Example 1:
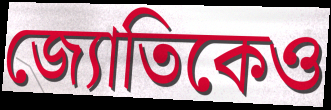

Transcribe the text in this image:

জ্যোতিকেও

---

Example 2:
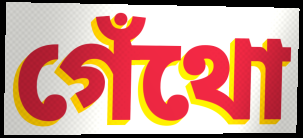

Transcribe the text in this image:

গেঁথো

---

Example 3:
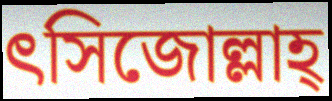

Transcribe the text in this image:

ৎসিজোল্লাহ্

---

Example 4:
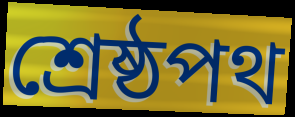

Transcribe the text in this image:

শ্রেষ্ঠপথ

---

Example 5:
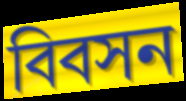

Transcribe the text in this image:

বিবসন